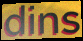
dins